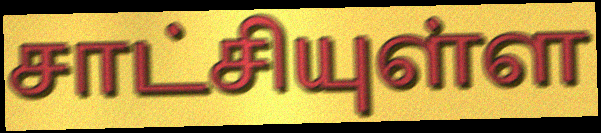
சாட்சியுள்ள